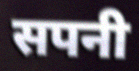
सपनी